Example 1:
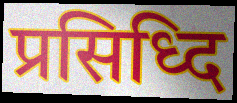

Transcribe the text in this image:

प्रसिध्दि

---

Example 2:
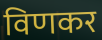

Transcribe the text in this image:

विणकर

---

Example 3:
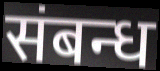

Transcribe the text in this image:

संबन्ध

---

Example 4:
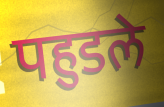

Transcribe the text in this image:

पहुडले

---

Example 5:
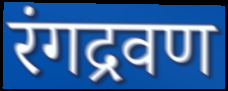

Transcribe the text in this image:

रंगद्रवण